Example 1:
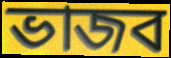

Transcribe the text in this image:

ভাজব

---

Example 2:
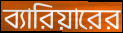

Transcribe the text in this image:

ব্যারিয়ারের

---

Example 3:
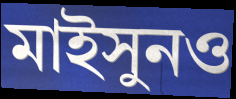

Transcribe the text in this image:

মাইসুনও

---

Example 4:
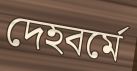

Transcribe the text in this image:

দেহবর্মে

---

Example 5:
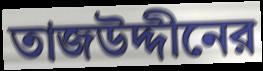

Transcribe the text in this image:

তাজউদ্দীনের